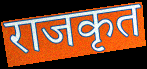
राजकृत